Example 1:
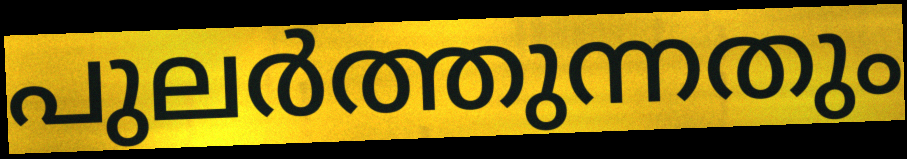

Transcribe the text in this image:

പുലർത്തുന്നതും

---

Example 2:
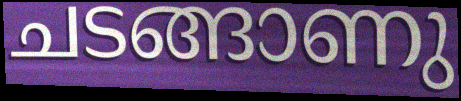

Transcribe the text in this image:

ചടങ്ങാണു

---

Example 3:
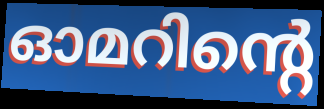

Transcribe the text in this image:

ഓമറിന്റെ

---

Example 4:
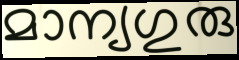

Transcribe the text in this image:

മാന്യഗുരു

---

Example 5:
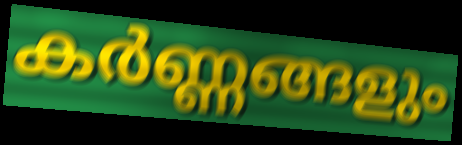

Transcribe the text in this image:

കർണ്ണങ്ങളും